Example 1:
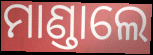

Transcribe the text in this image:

ମାଣ୍ଡାଲେ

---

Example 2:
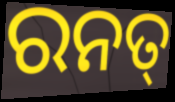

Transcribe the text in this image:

ରନତ୍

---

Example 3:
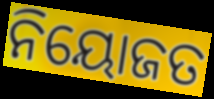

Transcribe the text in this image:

ନିୟୋଜତ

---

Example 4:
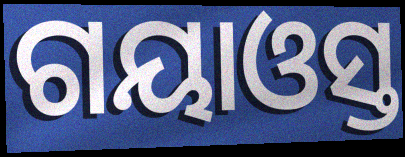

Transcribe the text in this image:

ଗୟାଓସ୍ତ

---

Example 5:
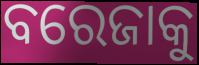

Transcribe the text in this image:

ବରେଜାକୁ